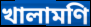
খালামণি